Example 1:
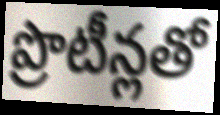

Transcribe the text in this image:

ప్రొటీన్లతో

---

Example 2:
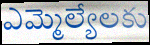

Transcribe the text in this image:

ఎమ్మెల్యేలకు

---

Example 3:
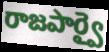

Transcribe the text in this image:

రాజపార్వై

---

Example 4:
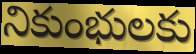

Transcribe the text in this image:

నికుంభులకు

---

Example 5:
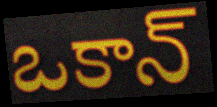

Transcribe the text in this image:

ఒకాన్